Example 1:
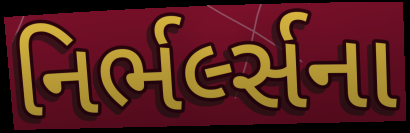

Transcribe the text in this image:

નિર્ભર્લ્સના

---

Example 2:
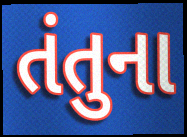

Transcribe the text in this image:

તંતુના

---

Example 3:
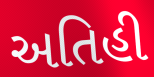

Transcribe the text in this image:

અતિહી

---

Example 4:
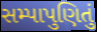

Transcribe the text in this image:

સમ્પાપુણિતું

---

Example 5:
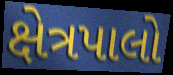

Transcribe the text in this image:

ક્ષેત્રપાલો